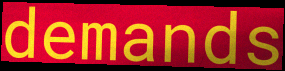
demands